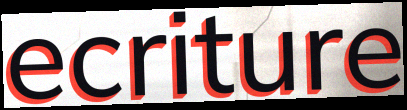
ecriture